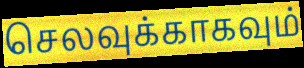
செலவுக்காகவும்